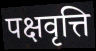
पक्षवृत्ति